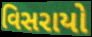
વિસરાયો